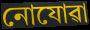
নোযোৱা